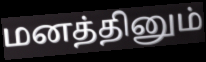
மனத்தினும்